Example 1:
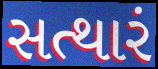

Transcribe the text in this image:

સત્થારં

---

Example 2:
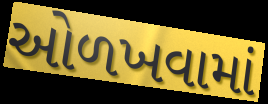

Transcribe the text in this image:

ઓળખવામાં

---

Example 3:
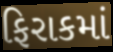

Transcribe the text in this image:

ફિરાકમાં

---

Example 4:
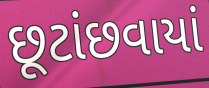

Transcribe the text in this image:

છૂટાંછવાયાં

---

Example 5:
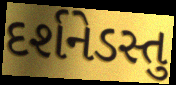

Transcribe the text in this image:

દર્શનેડસ્તુ